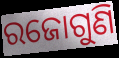
ରଜୋଗୁଣି